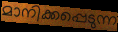
മാനിക്കപ്പെടുന്ന